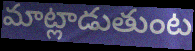
మాట్లాడుతుంట